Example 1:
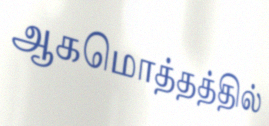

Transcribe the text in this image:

ஆகமொத்தத்தில்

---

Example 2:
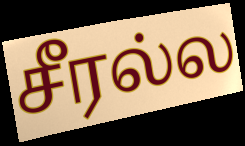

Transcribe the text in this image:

சீரல்ல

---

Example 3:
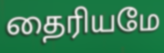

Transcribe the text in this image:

தைரியமே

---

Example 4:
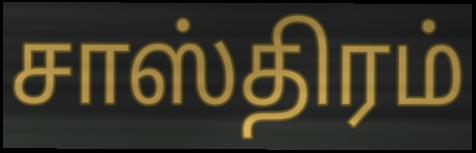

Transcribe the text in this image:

சாஸ்திரம்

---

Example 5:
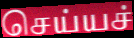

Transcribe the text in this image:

செய்யச்